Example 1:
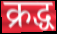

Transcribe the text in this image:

क्रद्ध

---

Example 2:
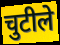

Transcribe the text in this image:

चुटीले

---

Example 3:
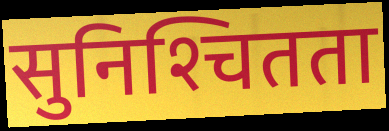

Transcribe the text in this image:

सुनिश्चितता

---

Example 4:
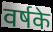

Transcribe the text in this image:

वर्षके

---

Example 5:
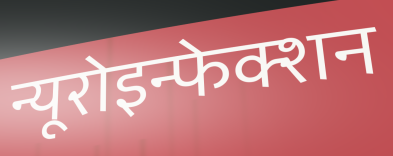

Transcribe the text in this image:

न्यूरोइन्फेक्शन